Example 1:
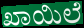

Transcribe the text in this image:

ಖಾಯಿಲೆ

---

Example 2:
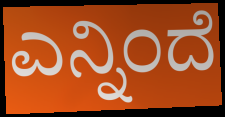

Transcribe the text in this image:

ಎನ್ನಿಂದೆ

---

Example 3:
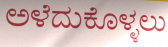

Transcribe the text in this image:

ಅಳೆದುಕೊಳ್ಳಲು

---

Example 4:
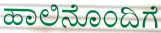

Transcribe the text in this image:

ಹಾಲಿನೊಂದಿಗೆ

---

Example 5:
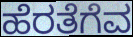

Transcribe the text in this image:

ಹೆರತೆಗೆವ